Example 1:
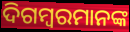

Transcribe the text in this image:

ଦିଗମ୍ବରମାନଙ୍କ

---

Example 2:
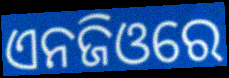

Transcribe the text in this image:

ଏନଜିଓରେ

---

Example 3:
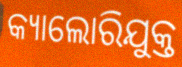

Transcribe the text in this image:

କ୍ୟାଲୋରିଯୁକ୍ତ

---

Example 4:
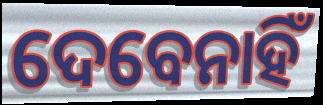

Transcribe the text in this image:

ଦେବେନାହିଁ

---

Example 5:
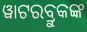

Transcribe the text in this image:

ୱାଟରବ୍ରୁକଙ୍କ